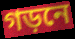
গড়নে